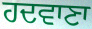
ਹਦਵਾਣਾ